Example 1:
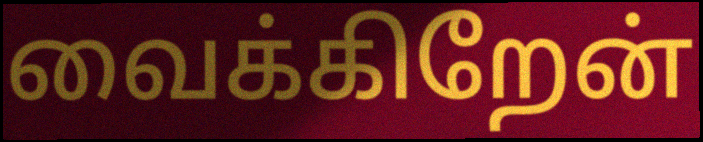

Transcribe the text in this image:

வைக்கிறேன்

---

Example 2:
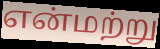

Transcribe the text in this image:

என்மற்று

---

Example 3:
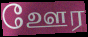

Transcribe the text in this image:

ஊேர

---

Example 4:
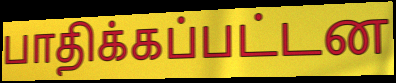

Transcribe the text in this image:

பாதிக்கப்பட்டன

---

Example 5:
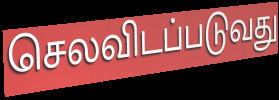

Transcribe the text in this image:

செலவிடப்படுவது